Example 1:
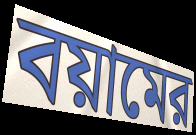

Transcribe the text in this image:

বয়ামের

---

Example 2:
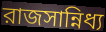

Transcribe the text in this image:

রাজসান্নিধ্য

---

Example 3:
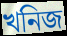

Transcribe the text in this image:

খনিজ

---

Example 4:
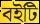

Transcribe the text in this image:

বইটি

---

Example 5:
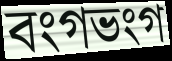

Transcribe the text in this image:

বংগভংগ